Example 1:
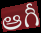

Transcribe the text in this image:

ఆగీ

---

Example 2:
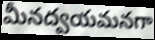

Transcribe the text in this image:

మీనద్వయమనగా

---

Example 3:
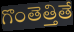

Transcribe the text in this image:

గొంతెత్తితే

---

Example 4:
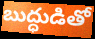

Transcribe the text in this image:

బుద్ధుడితో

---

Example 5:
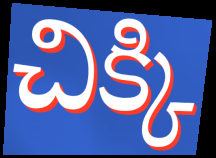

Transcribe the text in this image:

చిక్కి